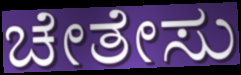
ಚೇತೇಸು